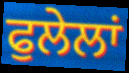
ਫੁਲੇਲਾਂ